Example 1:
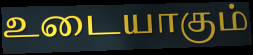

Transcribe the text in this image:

உடையாகும்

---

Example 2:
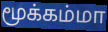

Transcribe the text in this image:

மூக்கம்மா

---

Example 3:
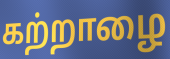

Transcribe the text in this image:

கற்றாழை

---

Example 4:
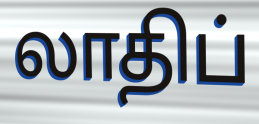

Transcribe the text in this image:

லாதிப்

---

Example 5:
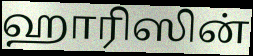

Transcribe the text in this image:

ஹாரிஸின்